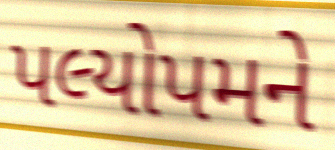
પલ્યોપમને